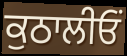
ਕੁਠਾਲੀਓਂ